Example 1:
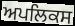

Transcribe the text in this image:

ਅਪਲਿਕਸ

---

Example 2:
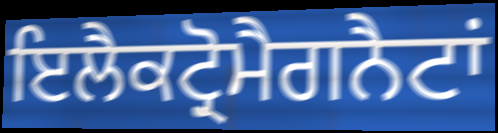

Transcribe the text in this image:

ਇਲੈਕਟ੍ਰੋਮੈਗਨੈਟਾਂ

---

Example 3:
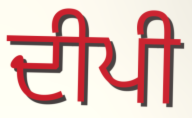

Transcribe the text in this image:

ਦੀਪੀ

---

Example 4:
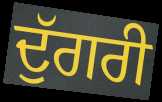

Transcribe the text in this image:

ਦੁੱਗਰੀ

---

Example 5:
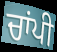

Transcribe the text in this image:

ਚਾਂਪੀ